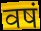
वषं